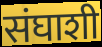
संघाशी